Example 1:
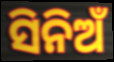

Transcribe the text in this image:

ସିନିଅଁ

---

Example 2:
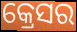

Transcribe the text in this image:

କ୍ରେସର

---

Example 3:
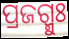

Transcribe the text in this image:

ପ୍ରଜଗ୍ମୁଃ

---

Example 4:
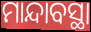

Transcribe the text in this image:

ମାନ୍ଦାବସ୍ଥା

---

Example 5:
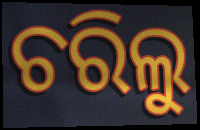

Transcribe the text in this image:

ଚରିଲୁ